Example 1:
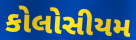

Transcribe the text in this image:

કોલોસીયમ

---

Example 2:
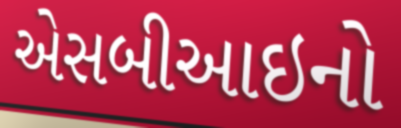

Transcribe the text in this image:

એસબીઆઇનો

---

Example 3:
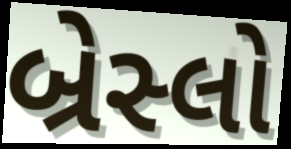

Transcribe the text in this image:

બ્રેસ્લો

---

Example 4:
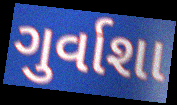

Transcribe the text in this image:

ગુર્વાશા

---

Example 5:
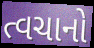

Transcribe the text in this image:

ત્વચાનો